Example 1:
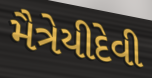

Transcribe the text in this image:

મૈત્રેયીદેવી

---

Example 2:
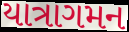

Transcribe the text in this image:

યાત્રાગમન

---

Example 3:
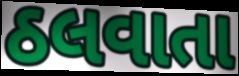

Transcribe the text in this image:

ઠલવાતા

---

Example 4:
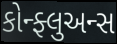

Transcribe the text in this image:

કોન્ફ્લુઅન્સ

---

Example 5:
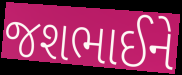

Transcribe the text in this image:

જશભાઈને